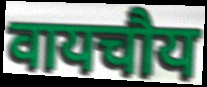
वायचौय